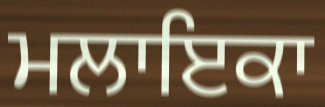
ਮਲਾਇਕਾ